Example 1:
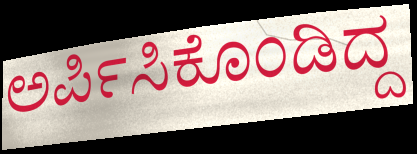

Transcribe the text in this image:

ಅರ್ಪಿಸಿಕೊಂಡಿದ್ದ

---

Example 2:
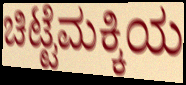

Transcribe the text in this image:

ಚಿಟ್ಟೆಮಕ್ಕಿಯ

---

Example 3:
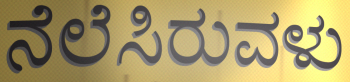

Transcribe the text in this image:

ನೆಲೆಸಿರುವಳು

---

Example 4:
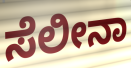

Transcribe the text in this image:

ಸೆಲೀನಾ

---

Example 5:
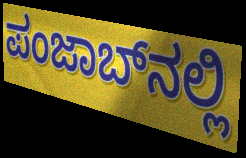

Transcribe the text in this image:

ಪಂಜಾಬ್‌ನಲ್ಲಿ